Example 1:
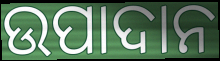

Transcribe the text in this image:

ଉପାଦାନ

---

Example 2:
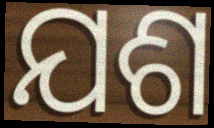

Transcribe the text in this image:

ଯଶ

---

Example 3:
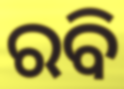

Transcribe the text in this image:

ରବି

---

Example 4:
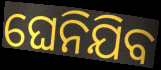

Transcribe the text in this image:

ଘେନିଯିବ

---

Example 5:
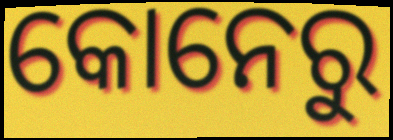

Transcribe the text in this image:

କୋନେରୁ